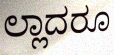
ಲ್ಲಾದರೂ